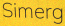
Simerg